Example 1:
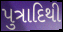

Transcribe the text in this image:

પુત્રાદિથી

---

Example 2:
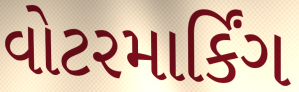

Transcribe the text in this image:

વોટરમાર્કિંગ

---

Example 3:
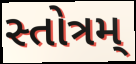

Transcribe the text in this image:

સ્તોત્રમ્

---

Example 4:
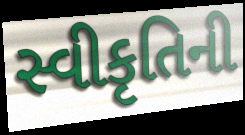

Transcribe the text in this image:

સ્વીકૃતિની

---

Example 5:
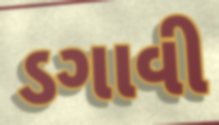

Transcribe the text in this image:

ડગાવી